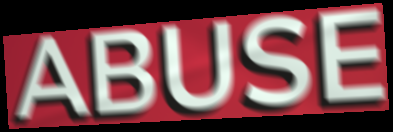
ABUSE